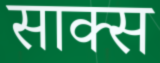
साक्स